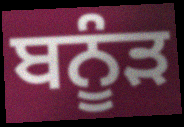
ਬਨੂੰੜ